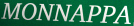
MONNAPPA